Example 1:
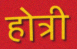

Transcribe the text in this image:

होत्री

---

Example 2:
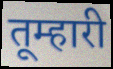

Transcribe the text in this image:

तूम्हारी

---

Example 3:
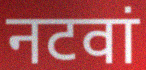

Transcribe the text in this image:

नटवां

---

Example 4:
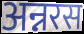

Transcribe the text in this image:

अन्नरस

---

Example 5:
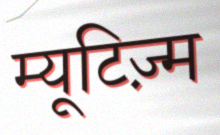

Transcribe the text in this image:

म्यूटिज़्म